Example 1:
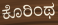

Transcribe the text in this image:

ಕೊರಿಂಥ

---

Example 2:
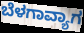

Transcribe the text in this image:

ಬೆಳಗಾವ್ಯಾಗ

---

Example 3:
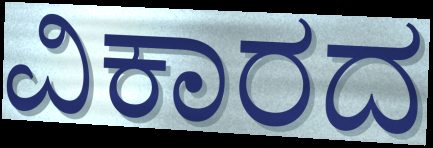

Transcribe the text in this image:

ವಿಕಾರದ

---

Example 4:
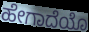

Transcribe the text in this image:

ಹೇಗಾದೆಯೊ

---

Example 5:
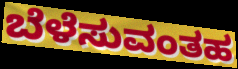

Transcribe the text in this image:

ಬೆಳೆಸುವಂತಹ